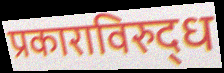
प्रकाराविरुद्ध